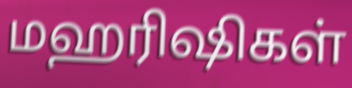
மஹரிஷிகள்